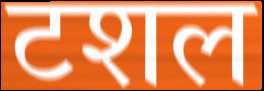
टशल